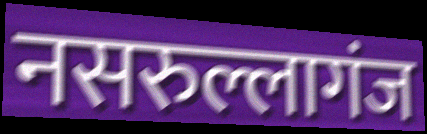
नसरुल्लागंज